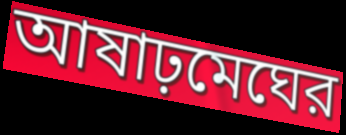
আষাঢ়মেঘের